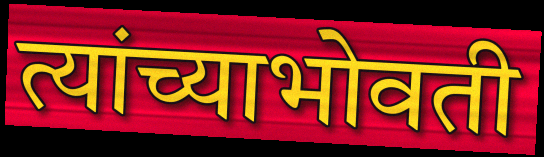
त्यांच्याभोवती